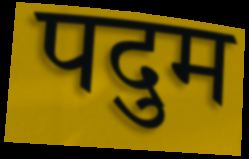
पदुम